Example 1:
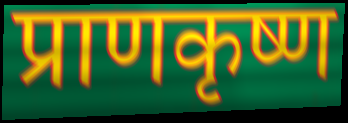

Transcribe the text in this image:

प्राणकृष्ण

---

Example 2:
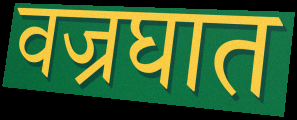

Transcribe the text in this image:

वज्रघात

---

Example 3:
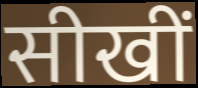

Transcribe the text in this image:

सीखीं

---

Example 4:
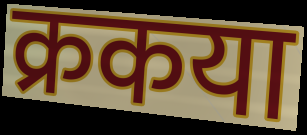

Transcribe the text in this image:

क्रकया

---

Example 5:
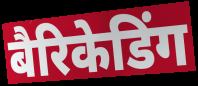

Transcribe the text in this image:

बैरिकेडिंग